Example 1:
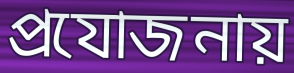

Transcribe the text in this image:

প্রযোজনায়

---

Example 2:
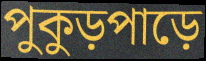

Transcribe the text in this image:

পুকুড়পাড়ে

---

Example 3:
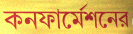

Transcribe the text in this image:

কনফার্মেশনের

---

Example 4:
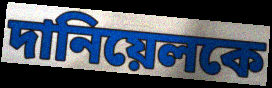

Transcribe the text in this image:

দানিয়েলকে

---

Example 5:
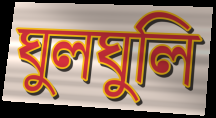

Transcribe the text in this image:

ঘুলঘুলি